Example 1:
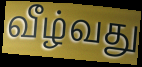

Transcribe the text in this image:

வீழ்வது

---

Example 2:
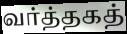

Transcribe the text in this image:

வர்த்தகத்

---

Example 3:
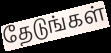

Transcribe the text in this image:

தேடுங்கள்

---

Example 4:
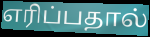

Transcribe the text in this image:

எரிப்பதால்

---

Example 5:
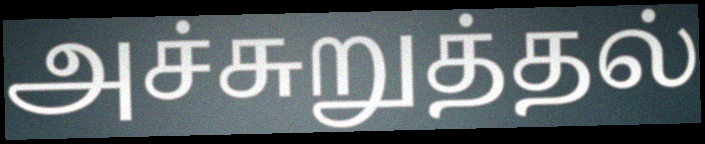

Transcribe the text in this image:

அச்சுறுத்தல்